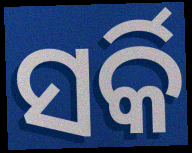
ସର୍କି